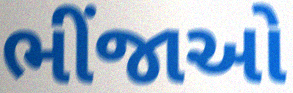
ભીંજાઓ